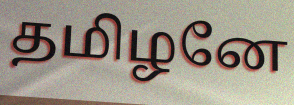
தமிழனே